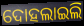
ଦୋହଲାଇଲି